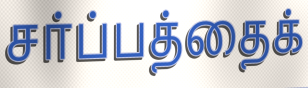
சர்ப்பத்தைக்